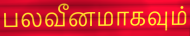
பலவீனமாகவும்